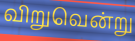
விறுவென்று